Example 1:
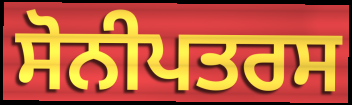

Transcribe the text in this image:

ਸੋਨੀਪਤਰਸ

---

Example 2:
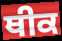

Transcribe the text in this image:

ਥੀਕ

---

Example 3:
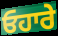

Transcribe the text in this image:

ਓਹਾਰੇ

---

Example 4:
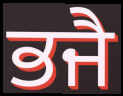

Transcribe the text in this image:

ਭਜੈ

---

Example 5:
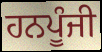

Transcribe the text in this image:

ਹਨਪੂੰਜੀ